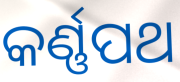
କର୍ଣ୍ଣପଥ